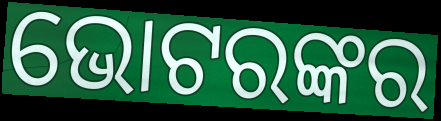
ଭୋଟରଙ୍କର